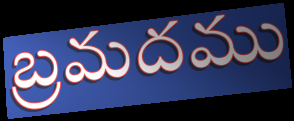
బ్రమదము